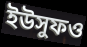
ইউসুফও